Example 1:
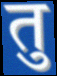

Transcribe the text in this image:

तु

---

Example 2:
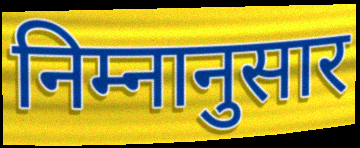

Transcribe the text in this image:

निम्नानुसार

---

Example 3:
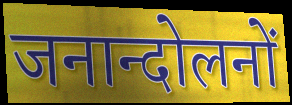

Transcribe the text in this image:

जनान्दोलनों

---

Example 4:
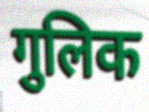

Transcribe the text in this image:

गुलिक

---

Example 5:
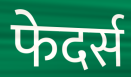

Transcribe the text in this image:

फेदर्स